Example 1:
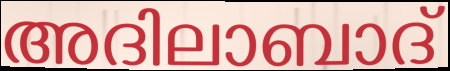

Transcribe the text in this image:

അദിലാബാദ്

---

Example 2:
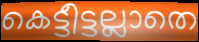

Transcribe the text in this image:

കെട്ടീട്ടല്ലാതെ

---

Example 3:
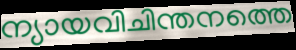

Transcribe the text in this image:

ന്യായവിചിന്തനത്തെ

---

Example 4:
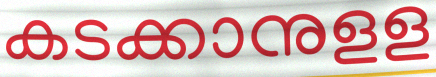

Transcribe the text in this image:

കടക്കാനുളള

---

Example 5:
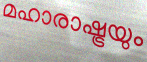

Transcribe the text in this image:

മഹാരാഷ്ട്രയും